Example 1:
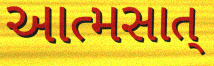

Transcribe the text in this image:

આત્મસાત્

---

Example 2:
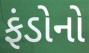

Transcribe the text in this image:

ફંડોનો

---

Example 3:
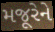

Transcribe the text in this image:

મજૂરેને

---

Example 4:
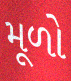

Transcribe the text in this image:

મૂળો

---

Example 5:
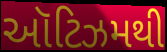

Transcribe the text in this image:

ઑટિઝમથી